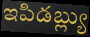
ఇపిడబ్ల్యు